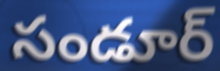
సండూర్